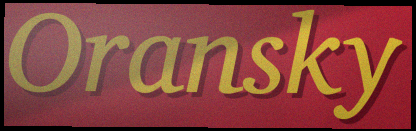
Oransky